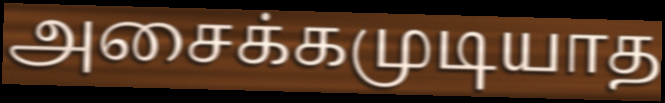
அசைக்கமுடியாத